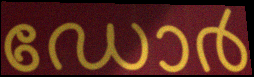
ഡോർ